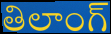
తిలాంగ్